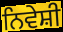
ਨਿਵੇਸ਼ੀ